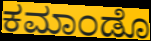
ಕಮಾಂಡೊ